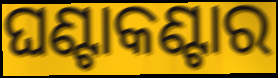
ଘଣ୍ଟାକଣ୍ଟାର